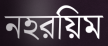
নহরয়িম